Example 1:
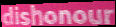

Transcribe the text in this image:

dishonour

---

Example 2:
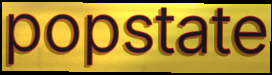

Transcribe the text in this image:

popstate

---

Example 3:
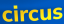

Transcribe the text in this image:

circus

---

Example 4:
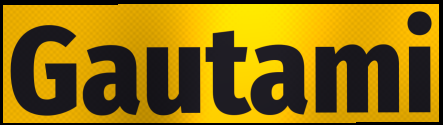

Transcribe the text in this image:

Gautami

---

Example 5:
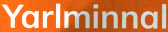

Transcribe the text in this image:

Yarlminnal